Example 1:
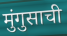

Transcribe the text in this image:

मुंगुसाची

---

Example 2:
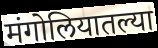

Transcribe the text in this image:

मंगोलियातल्या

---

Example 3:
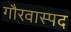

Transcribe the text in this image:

गौरवास्पद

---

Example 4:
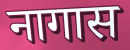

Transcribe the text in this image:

नागास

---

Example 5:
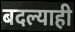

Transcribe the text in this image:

बदल्याही